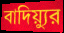
বাদিয়্যুর